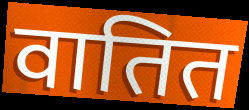
वातित